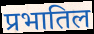
प्रभातिल